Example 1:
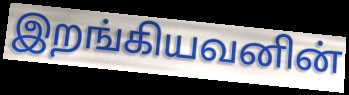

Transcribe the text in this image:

இறங்கியவனின்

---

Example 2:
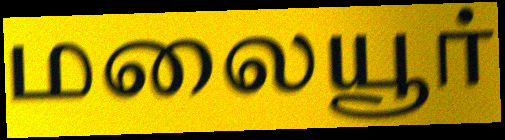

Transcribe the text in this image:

மலையூர்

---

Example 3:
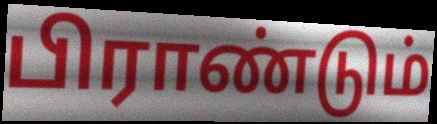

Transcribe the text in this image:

பிராண்டும்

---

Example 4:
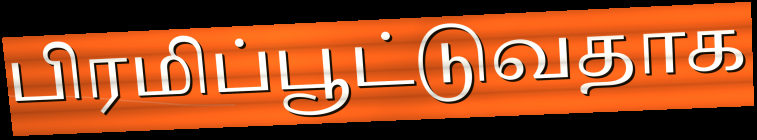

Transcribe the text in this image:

பிரமிப்பூட்டுவதாக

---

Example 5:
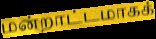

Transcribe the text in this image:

மன்றாட்டமாகக்